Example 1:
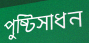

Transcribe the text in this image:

পুষ্টিসাধন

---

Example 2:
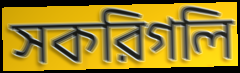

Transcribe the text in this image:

সকরিগলি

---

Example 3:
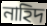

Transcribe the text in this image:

নাহিদ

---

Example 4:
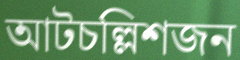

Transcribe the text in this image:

আটচল্লিশজন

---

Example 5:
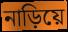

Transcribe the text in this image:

নাড়িয়ে